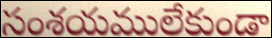
సంశయములేకుండా